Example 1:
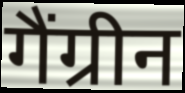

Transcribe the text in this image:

गैंग्रीन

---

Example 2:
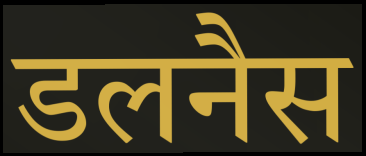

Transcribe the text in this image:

डलनैस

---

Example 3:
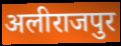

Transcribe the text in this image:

अलीराजपुर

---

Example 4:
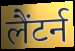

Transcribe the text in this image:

लैंटर्न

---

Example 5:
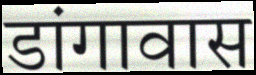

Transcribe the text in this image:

डांगावास